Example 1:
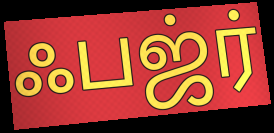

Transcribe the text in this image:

ஃபஜ்ர்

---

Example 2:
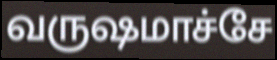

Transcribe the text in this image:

வருஷமாச்சே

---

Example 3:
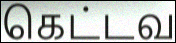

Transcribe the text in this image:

கெட்டவ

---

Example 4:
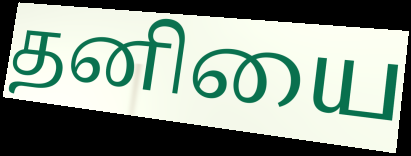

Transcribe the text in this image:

தனியை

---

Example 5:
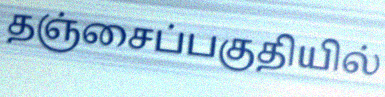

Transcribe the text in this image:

தஞ்சைப்பகுதியில்